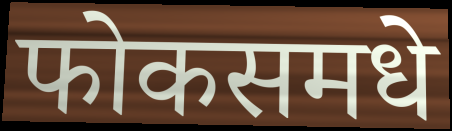
फोकसमधे